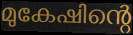
മുകേഷിന്റെ